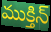
ముక్తిన్